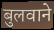
बुलवाने